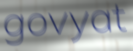
govyat